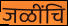
जळींचि